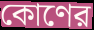
কোণের